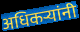
अधिकऱ्यांनी